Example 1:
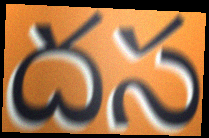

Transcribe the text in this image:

దస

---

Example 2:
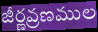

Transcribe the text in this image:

జీర్ణవ్రణముల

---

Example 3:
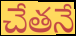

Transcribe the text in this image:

చేతనే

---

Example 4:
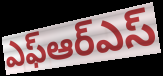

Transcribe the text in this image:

ఎఫ్ఆర్ఎస్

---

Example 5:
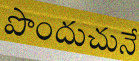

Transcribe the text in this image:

పొందుచునే